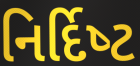
નિર્દિષ્‍ટ